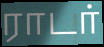
ராடர்